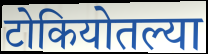
टोकियोतल्या